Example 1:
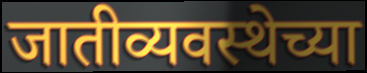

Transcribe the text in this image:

जातीव्यवस्थेच्या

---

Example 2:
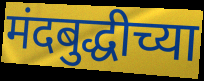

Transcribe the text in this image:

मंदबुद्धीच्या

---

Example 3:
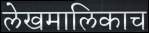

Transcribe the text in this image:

लेखमालिकाच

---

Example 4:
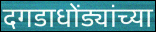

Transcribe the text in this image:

दगडाधोंड्यांच्या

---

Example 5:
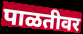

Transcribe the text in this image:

पाळतीवर